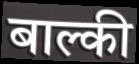
बाल्‍की